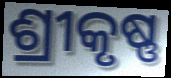
ଶ୍ରୀକୃଷ୍ଣ